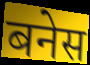
बनेस